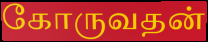
கோருவதன்